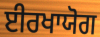
ਈਰਖਾਯੋਗ